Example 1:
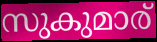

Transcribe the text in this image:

സുകുമാര്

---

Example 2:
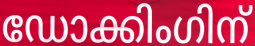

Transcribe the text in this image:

ഡോക്കിംഗിന്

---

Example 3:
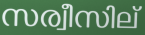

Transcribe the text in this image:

സര്വീസില്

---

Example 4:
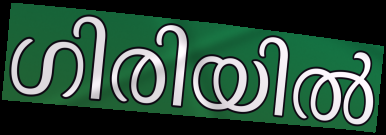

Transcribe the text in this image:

ഗിരിയിൽ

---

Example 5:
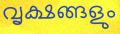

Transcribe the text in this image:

വൃക്ഷങ്ങളും